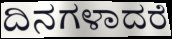
ದಿನಗಳಾದರೆ